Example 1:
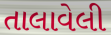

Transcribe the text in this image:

તાલાવેલી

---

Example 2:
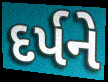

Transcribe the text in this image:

દર્પને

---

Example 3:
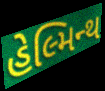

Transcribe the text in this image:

હેલ્મિન્થ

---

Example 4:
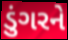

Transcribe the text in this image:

ડુંગરને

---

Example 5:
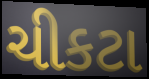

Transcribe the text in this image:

ચીકટા